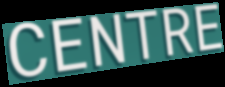
CENTRE